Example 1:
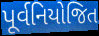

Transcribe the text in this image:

પૂર્વનિયોજિત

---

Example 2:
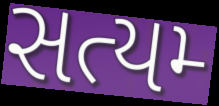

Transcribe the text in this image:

સત્યમ્‍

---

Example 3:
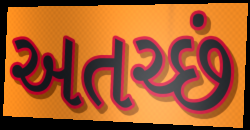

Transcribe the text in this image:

અતચ્છં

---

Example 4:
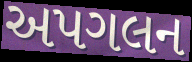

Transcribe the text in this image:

અપગલન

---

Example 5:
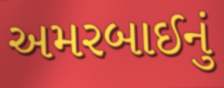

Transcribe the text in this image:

અમરબાઈનું